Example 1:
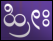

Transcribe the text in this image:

ಹ್ರೀಃ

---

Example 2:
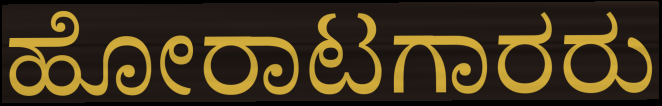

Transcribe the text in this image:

ಹೋರಾಟಗಾರರು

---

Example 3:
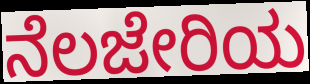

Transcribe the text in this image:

ನೆಲಜೇರಿಯ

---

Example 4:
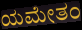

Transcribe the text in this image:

ಯಮೇತಂ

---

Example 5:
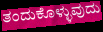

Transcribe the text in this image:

ತಂದುಕೊಳ್ಳುವುದು